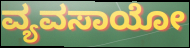
ವ್ಯವಸಾಯೋ